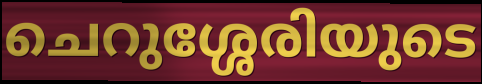
ചെറുശ്ശേരിയുടെ